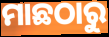
ମାଛଠାରୁ